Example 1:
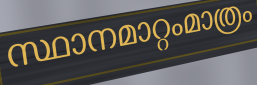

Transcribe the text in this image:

സ്ഥാനമാറ്റംമാത്രം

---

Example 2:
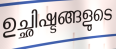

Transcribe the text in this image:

ഉച്ഛിഷ്ടങ്ങളുടെ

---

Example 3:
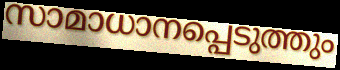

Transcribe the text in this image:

സാമാധാനപ്പെടുത്തും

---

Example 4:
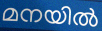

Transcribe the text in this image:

മനയിൽ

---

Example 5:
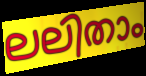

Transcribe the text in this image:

ലലിതാം